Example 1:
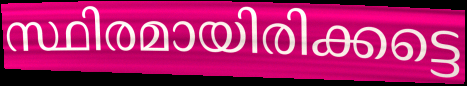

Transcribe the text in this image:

സ്ഥിരമായിരിക്കട്ടെ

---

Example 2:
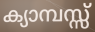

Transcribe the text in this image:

ക്യാമ്പസ്സ്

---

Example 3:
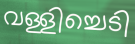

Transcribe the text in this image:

വള്ളിച്ചെടി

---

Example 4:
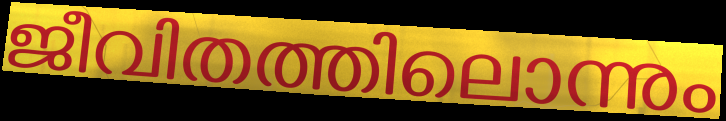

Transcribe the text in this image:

ജീവിതത്തിലൊന്നും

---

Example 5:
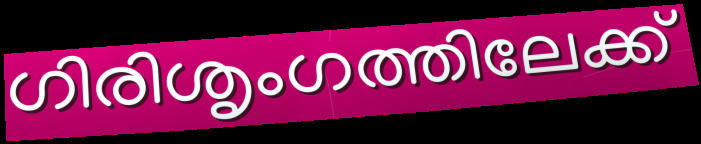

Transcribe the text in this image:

ഗിരിശൃംഗത്തിലേക്ക്